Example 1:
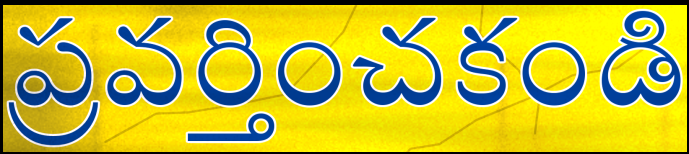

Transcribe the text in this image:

ప్రవర్తించకండి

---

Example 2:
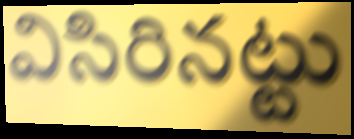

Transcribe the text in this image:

విసిరినట్టు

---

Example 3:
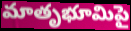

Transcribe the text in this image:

మాతృభూమిపై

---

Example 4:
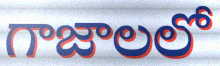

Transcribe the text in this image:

గాజాలలో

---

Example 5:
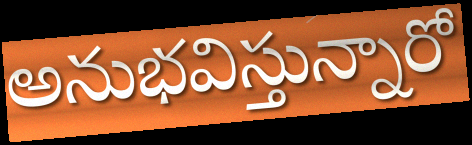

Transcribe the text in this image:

అనుభవిస్తున్నారో